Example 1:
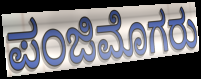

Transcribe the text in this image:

ಪಂಜಿಮೊಗರು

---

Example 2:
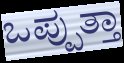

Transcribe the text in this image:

ಒಪ್ಪುತ್ತಾ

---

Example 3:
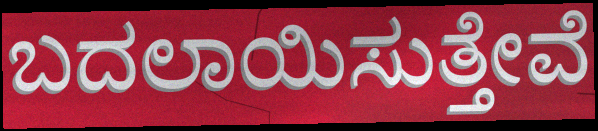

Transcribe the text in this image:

ಬದಲಾಯಿಸುತ್ತೇವೆ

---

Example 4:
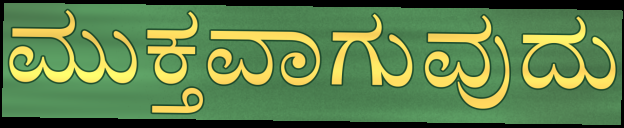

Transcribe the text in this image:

ಮುಕ್ತವಾಗುವುದು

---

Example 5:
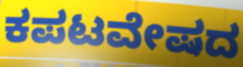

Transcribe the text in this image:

ಕಪಟವೇಷದ